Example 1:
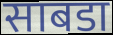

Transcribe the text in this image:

साबडा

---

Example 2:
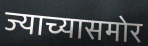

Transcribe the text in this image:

ज्याच्यासमोर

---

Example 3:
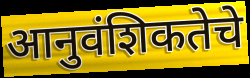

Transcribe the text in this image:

आनुवंशिकतेचे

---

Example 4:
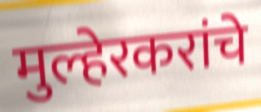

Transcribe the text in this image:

मुल्हेरकरांचे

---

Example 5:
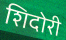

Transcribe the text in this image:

शिदोरी